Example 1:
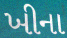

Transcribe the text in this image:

ખીના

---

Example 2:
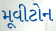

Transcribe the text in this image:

મૂવીટોન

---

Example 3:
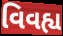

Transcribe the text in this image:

વિવહ્ય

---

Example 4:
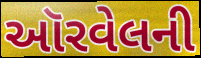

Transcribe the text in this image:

ઑરવેલની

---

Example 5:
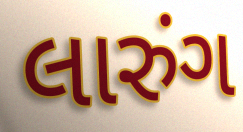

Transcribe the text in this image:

લારુંગ